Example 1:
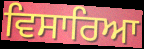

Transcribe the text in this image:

ਵਿਸਾਰਿਆ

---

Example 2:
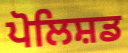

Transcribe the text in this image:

ਪੋਲਿਸ਼ਡ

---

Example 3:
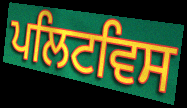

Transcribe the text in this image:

ਪਲਿਟਵਿਸ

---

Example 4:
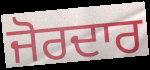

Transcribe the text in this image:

ਜੋਰਦਾਰ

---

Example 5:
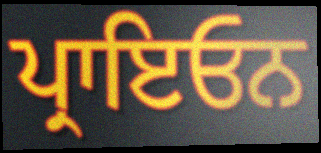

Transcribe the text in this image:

ਪ੍ਰਾਇਓਨ